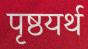
पृष्ठयर्थ